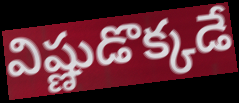
విష్ణుడొక్కడే